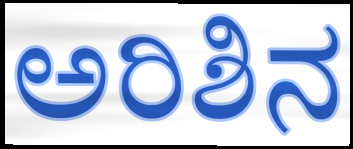
ಅರಿಶಿನ